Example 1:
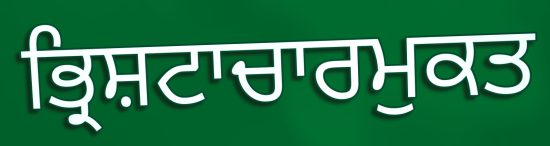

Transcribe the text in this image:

ਭ੍ਰਿਸ਼ਟਾਚਾਰਮੁਕਤ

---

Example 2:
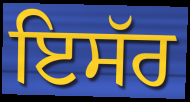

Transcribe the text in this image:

ਇਸੱਰ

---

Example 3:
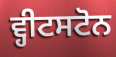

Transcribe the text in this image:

ਵ੍ਹੀਟਸਟੋਨ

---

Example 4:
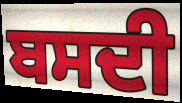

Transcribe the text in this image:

ਬਸਦੀ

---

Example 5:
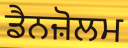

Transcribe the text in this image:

ਡੈਨਜ਼ੋਲਮ